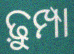
ଢ଼ୁମ୍ପା